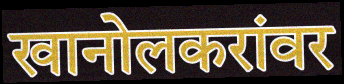
खानोलकरांवर